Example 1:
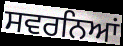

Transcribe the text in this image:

ਸਵਰਨਿਆਂ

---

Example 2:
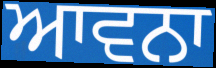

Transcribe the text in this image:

ਆਵਨਾ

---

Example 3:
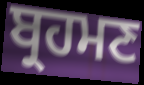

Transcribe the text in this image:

ਬ੍ਰਹਮਣ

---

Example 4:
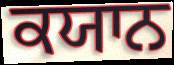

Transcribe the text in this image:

ਕਯਾਨ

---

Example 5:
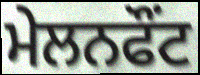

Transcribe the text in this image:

ਮੇਲਨਫੌਂਟ